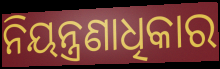
ନିୟନ୍ତ୍ରଣାଧିକାର